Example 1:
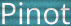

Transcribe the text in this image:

Pinot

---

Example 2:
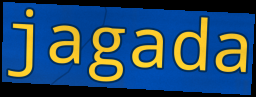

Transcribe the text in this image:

jagada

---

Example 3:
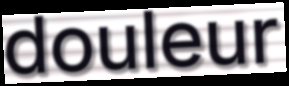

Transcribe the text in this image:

douleur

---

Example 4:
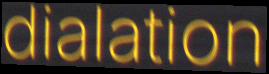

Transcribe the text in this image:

dialation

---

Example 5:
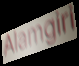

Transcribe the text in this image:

Alamgiri